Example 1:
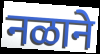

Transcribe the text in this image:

नळाने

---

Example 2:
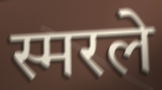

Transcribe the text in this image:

स्मरले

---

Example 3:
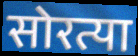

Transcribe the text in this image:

सोरत्या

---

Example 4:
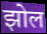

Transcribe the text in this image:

झोल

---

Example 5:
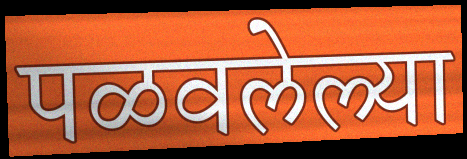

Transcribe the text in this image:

पळवलेल्या